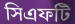
সিএফটি